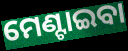
ମେଣ୍ଟାଇବା